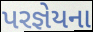
પરજ્ઞેયના